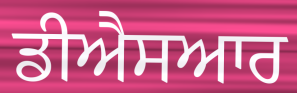
ਡੀਐਸਆਰ